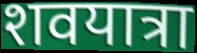
शवयात्रा